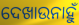
ଦେଖାଉନାହୁଁ